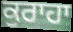
ਕੁਰਾਹਾ